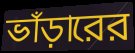
ভাঁড়ারের